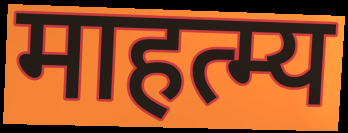
माहत्म्य